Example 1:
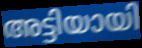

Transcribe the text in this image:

അട്ടിയായി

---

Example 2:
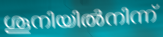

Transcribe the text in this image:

ശൂനിയിൽനിന്ന്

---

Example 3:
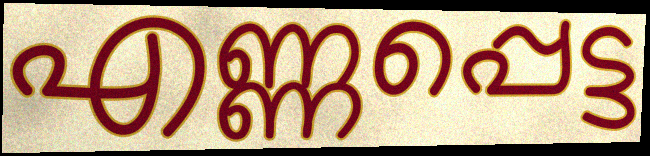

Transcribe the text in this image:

എണ്ണപ്പെട്ട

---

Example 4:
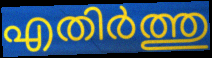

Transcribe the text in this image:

എതിർത്തു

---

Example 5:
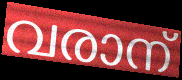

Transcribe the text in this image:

വരാന്